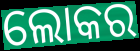
ଲୋକର